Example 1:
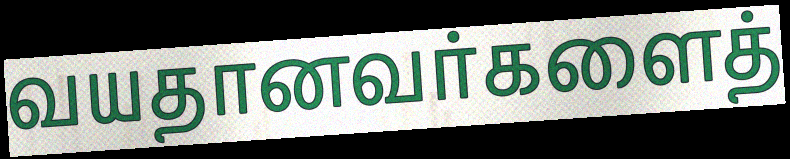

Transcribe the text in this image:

வயதானவர்களைத்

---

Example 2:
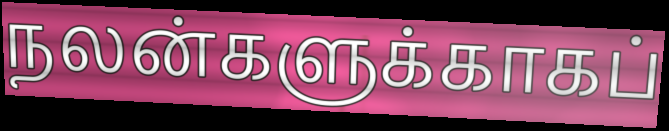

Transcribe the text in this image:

நலன்களுக்காகப்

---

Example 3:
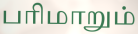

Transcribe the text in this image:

பரிமாறும்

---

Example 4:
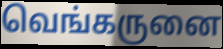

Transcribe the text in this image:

வெங்கருனை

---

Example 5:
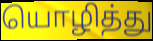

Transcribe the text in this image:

யொழித்து